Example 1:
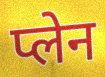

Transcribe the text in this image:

प्लेन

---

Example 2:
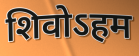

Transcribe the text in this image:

शिवोऽहम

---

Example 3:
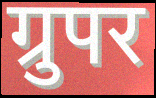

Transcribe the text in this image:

ग्रुपर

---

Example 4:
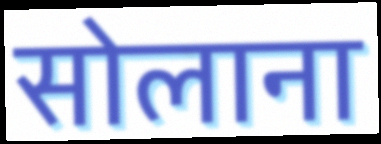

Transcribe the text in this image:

सोलाना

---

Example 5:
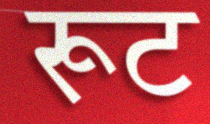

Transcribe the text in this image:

रूट